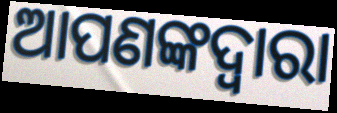
ଆପଣଙ୍କଦ୍ଵାରା